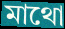
মাথো